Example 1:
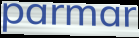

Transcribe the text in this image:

parmar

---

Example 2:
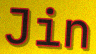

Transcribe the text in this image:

Jin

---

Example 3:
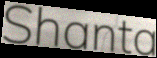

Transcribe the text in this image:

Shanta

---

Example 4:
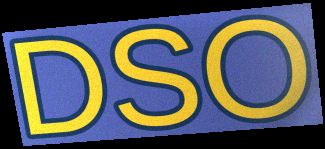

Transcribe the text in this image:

DSO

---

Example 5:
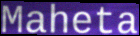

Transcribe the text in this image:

Maheta